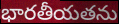
భారతీయతను